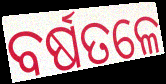
ବର୍ଷତଳେ